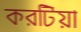
করটিয়া